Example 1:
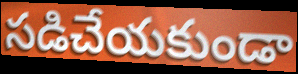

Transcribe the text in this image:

సడిచేయకుండా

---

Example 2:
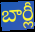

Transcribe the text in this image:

బార్లీ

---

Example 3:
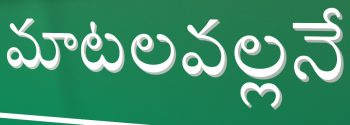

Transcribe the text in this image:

మాటలవల్లనే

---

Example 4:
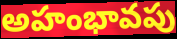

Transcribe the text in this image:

అహంభావపు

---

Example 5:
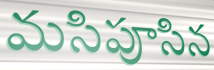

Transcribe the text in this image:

మసిపూసిన